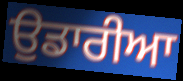
ਉਡਾਰੀਆ